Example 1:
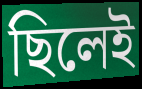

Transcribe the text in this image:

ছিলেই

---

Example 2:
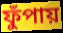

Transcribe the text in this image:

ফুঁপায়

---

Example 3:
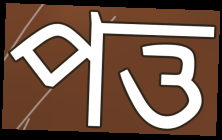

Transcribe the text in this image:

পত্ত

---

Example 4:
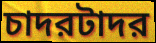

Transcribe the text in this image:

চাদরটাদর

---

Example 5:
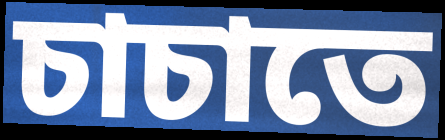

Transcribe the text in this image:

চাচাতে